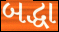
બદ્ધા